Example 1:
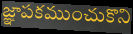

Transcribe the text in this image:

జ్ఞాపకముంచుకొని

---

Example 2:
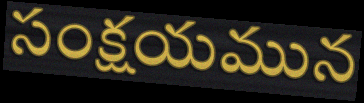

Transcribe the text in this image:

సంక్షయమున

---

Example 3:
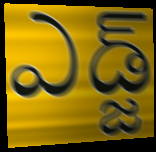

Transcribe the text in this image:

ఎడ్జ్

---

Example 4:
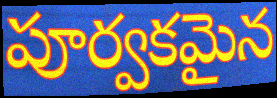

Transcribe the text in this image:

పూర్వకమైన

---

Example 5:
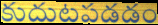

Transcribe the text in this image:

కుదుటపడడం